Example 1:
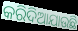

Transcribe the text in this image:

କରିଦିଆଯାଉଛି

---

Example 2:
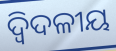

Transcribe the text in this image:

ଦ୍ବିଦଳୀୟ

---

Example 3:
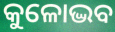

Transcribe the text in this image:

କୁଳୋଦ୍ଭବ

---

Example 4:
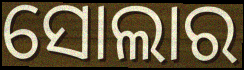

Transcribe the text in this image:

ସୋଲାର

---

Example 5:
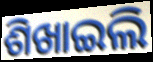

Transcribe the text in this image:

ଶିଖାଇଲି